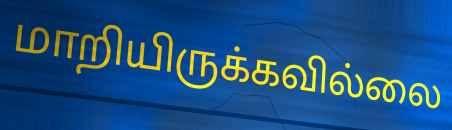
மாறியிருக்கவில்லை